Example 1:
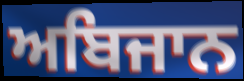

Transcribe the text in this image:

ਅਬਿਜਾਨ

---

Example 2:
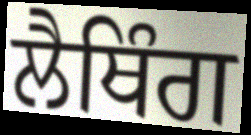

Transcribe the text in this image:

ਲੈਥਿੰਗ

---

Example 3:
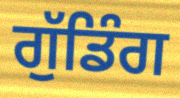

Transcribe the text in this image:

ਗੁੱਡਿੰਗ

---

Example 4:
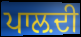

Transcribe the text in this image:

ਪਾਲ਼ਦੀ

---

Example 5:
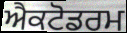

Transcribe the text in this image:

ਐਕਟੋਡਰਮ